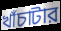
খাঁচাটার